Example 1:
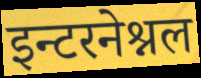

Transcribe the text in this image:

इन्टरनेश्नल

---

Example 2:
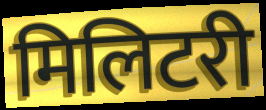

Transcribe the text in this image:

मिलिटरी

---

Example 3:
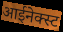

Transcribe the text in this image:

आईनेक्स्ट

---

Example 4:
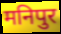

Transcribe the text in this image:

मनिपुर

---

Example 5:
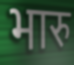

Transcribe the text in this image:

भारु